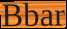
Bbar